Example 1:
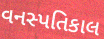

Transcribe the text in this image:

વનસ્પતિકાલ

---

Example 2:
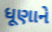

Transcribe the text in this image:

ધૂણાને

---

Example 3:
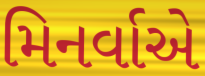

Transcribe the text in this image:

મિનર્વાએ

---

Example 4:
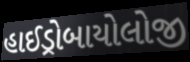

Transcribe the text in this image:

હાઈડ્રોબાયોલોજી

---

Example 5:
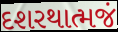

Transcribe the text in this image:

દશરથાત્મજં